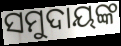
ସମୁଦାୟଙ୍କ